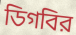
ডিগবির